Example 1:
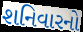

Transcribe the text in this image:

શનિવારનો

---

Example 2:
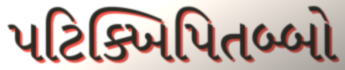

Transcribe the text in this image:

પટિક્ખિપિતબ્બો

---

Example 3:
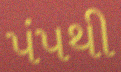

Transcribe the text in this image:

પંપથી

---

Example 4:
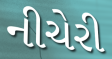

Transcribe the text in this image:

નીચેરી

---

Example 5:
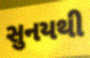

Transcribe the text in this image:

સુનયથી